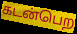
கடன்பெற